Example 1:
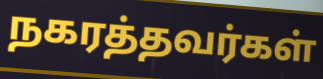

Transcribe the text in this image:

நகரத்தவர்கள்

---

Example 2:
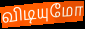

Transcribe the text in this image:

விடியுமோ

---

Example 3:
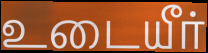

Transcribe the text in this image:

உடையீர்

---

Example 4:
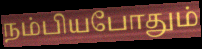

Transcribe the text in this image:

நம்பியபோதும்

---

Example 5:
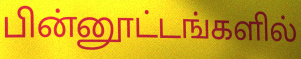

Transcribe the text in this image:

பின்னூட்டங்களில்